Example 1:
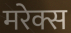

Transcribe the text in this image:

मरेक्स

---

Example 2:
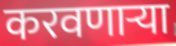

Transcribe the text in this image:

करवणाऱ्या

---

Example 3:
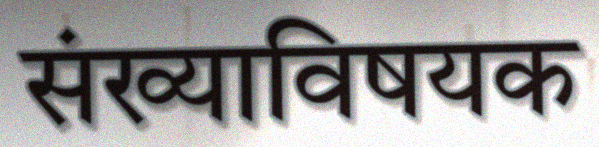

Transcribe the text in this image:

संख्याविषयक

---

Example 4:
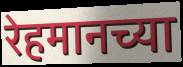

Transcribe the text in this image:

रेहमानच्या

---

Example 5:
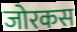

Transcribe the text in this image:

जोरकस